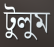
টুলুম